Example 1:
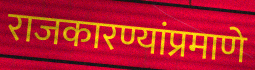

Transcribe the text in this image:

राजकारण्यांप्रमाणे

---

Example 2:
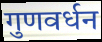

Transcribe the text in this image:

गुणवर्धन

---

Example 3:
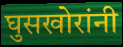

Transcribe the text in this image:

घुसखोरांनी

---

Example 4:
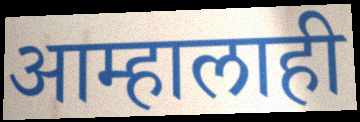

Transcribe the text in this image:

आम्हालाही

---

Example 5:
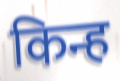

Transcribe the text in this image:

किन्ह